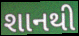
શાનથી